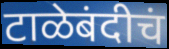
टाळेबंदीचं